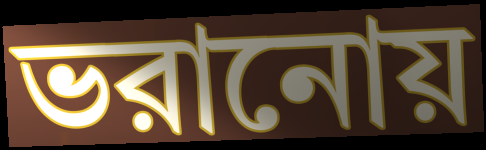
ভরানোয়